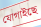
যোগাইছে